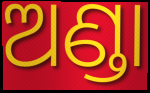
ଅଣ୍ଡା